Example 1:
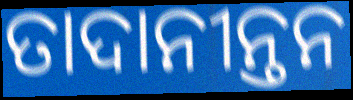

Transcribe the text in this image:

ତାଦାନୀନ୍ତନ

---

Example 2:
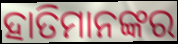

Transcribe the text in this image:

ହାତିମାନଙ୍କର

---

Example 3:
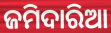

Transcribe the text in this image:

ଜମିଦାରିଆ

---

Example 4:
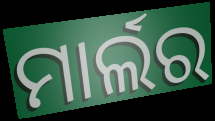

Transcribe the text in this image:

ମାର୍ଲର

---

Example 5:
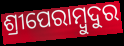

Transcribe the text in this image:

ଶ୍ରୀପେରାମ୍ବୁଦୁର